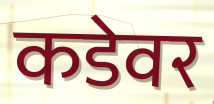
कडेवर